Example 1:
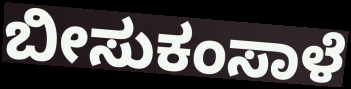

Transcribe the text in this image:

ಬೀಸುಕಂಸಾಳೆ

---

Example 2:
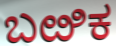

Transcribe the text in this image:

ಬೞಿಕ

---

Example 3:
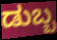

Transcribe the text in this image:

ಡುಬ್ಬ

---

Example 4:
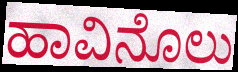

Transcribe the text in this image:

ಹಾವಿನೊಲು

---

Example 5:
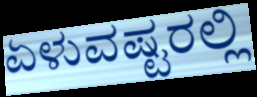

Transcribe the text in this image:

ಏಳುವಷ್ಟರಲ್ಲಿ